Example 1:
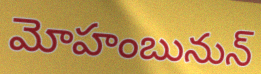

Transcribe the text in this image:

మోహంబునున్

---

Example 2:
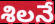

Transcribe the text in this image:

శిలనే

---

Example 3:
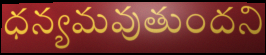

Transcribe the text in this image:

ధన్యమవుతుందని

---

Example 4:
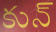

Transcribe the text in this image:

కున్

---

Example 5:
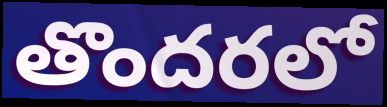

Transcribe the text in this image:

తొందరలో